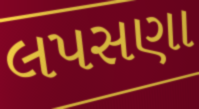
લપસણા